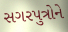
સગરપુત્રોને